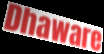
Dhaware